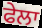
ਫੇਲਾ